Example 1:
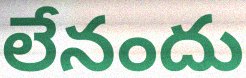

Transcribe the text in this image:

లేనందు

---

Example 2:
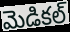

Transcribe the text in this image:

మెడికల్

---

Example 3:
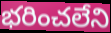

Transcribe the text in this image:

భరించలేని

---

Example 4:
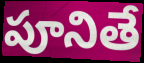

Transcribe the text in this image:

పూనితే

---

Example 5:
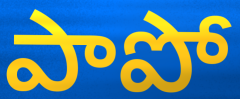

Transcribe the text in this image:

పాపో